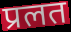
प्रलत